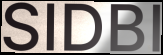
SIDBI